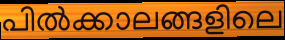
പിൽക്കാലങ്ങളിലെ